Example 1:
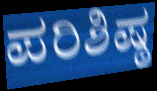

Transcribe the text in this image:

ಪರಿಶಿಷ್ಠ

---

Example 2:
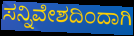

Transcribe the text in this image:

ಸನ್ನಿವೇಶದಿಂದಾಗಿ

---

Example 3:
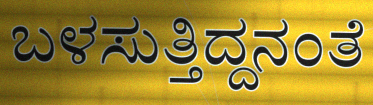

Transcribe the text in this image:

ಬಳಸುತ್ತಿದ್ದನಂತೆ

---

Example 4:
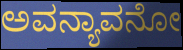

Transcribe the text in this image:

ಅವನ್ಯಾವನೋ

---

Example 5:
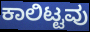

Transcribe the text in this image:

ಕಾಲಿಟ್ಟವು